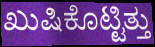
ಖುಷಿಕೊಟ್ಟಿತ್ತು